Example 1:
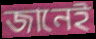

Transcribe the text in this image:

জানেই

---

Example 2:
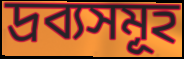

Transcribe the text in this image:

দ্ৰব্যসমূহ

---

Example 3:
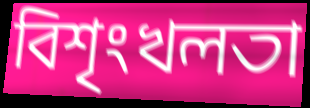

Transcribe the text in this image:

বিশৃংখলতা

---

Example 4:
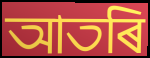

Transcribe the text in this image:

আতৰি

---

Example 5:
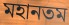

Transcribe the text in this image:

মহানতম